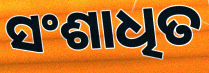
ସଂଶାଧିତ